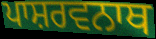
ਪਾਸ਼ਰਵਨਾਥ